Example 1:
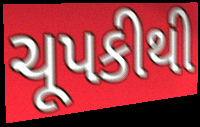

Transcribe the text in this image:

ચૂપકીથી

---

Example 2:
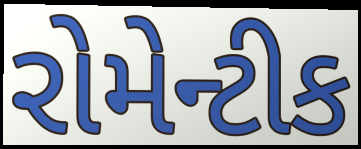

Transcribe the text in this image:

રોમેન્ટીક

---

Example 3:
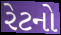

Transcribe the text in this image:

રેટનો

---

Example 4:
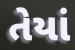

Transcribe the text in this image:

તેયાં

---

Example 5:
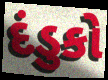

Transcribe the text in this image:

દંડુકો